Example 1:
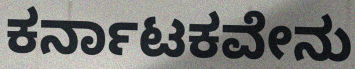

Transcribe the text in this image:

ಕರ್ನಾಟಕವೇನು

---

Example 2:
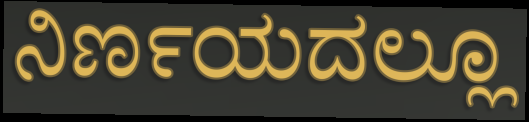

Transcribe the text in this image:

ನಿರ್ಣಯದಲ್ಲೂ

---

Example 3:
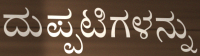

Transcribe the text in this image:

ದುಪ್ಪಟಿಗಳನ್ನು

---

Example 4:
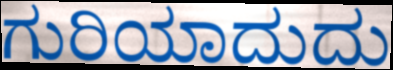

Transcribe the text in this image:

ಗುರಿಯಾದುದು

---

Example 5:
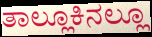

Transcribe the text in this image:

ತಾಲ್ಲೂಕಿನಲ್ಲೂ